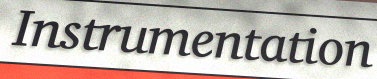
Instrumentation